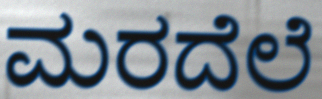
ಮರದೆಲೆ